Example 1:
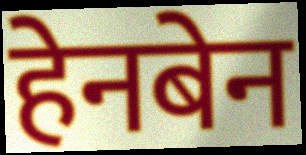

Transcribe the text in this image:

हेनबेन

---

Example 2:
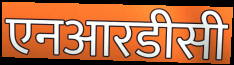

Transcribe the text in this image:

एनआरडीसी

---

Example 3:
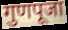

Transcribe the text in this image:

गुणपूजा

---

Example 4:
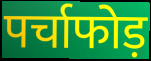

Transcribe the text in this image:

पर्चाफोड़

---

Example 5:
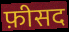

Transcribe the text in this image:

फ़ीसद